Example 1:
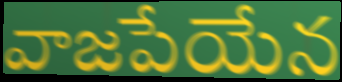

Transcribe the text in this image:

వాజపేయేన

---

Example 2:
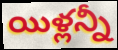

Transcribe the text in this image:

యిళ్లన్నీ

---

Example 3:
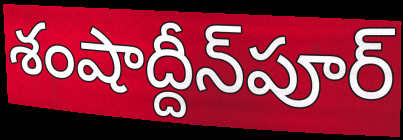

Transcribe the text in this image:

శంషాద్దీన్‌పూర్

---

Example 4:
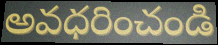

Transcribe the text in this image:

అవధరించండి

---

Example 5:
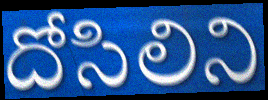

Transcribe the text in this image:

దోసిలిని